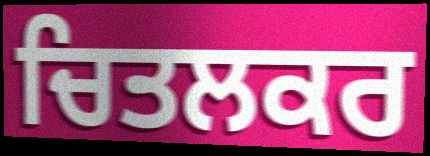
ਚਿਤਲਕਰ